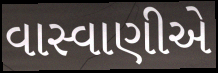
વાસ્વાણીએ